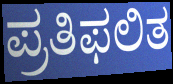
ಪ್ರತಿಫಲಿತ